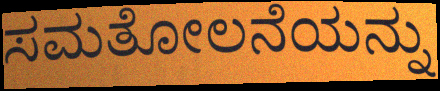
ಸಮತೋಲನೆಯನ್ನು